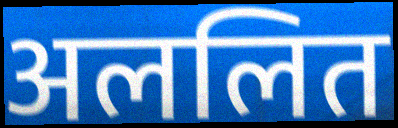
अललित